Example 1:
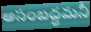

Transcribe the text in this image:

అసంబద్ధమనీ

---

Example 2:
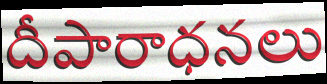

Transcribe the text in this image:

దీపారాధనలు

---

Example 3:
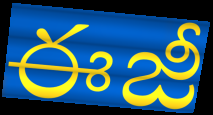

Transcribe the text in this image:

ఈజీ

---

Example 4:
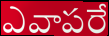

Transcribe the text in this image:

ఎవాపరే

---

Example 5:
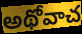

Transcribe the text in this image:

అథోవాచ